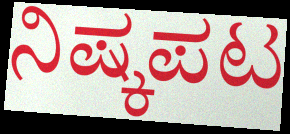
ನಿಷ್ಕಪಟ